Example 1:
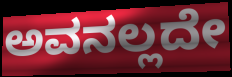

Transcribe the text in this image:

ಅವನಲ್ಲದೇ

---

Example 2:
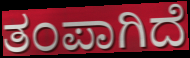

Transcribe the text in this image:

ತಂಪಾಗಿದೆ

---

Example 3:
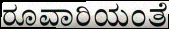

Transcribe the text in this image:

ರೂವಾರಿಯಂತೆ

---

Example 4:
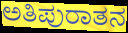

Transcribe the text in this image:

ಅತಿಪುರಾತನ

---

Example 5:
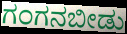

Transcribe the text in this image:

ಗಂಗನಬೀಡು